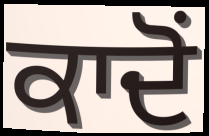
ਕਾਦੋਂ